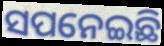
ସପନେଇଛି